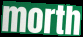
morth